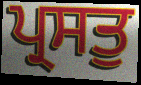
ਪ੍ਰਸਤੁ